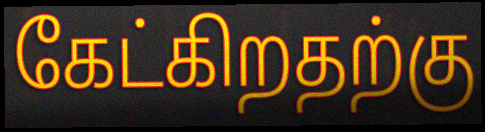
கேட்கிறதற்கு